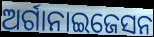
ଅର୍ଗାନାଇଜେସନ